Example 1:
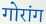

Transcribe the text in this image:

गोरांग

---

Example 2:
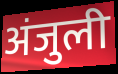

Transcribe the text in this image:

अंजुली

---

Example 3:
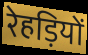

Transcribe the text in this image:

रेहड़ियों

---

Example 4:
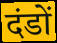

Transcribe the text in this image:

दंडों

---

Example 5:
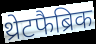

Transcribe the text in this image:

थ्रेटफैब्रिक